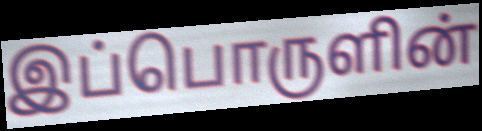
இப்பொருளின்